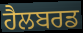
ਹੈਲਬਰਡ